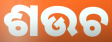
ଶଉଚ